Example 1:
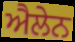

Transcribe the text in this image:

ਐਲੇਨ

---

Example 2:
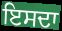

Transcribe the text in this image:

ਇਸਦਾ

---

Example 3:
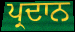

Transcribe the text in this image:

ਪ੍ਰਦਾਨ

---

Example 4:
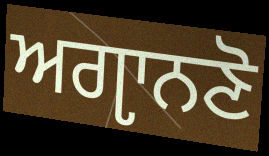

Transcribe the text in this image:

ਅਗੵਾਨਣੋ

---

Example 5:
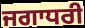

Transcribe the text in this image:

ਜਗਾਧਰੀ